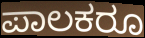
ಪಾಲಕರೂ